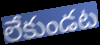
లేకుండట